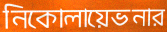
নিকোলায়েভনার